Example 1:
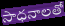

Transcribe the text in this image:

సాధనాలతో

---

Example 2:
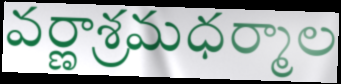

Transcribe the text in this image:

వర్ణాశ్రమధర్మాల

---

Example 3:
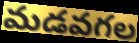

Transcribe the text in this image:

మడవగల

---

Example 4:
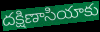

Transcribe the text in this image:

దక్షిణాసియాకు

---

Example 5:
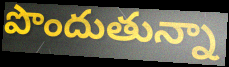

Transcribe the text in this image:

పొందుతున్నా